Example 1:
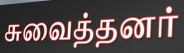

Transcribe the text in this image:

சுவைத்தனர்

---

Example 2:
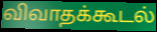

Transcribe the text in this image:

விவாதக்கூடல்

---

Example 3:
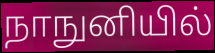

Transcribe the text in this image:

நாநுனியில்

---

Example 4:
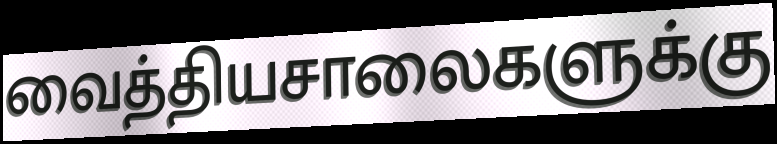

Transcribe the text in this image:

வைத்தியசாலைகளுக்கு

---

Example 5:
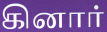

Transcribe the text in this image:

கினார்